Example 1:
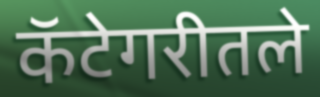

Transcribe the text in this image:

कॅटेगरीतले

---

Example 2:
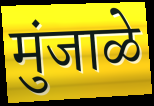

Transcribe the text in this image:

मुंजाळे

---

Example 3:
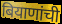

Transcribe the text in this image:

बियाणांची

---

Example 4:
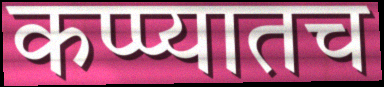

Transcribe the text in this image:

कप्प्यातच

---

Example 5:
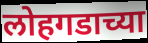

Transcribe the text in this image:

लोहगडाच्या